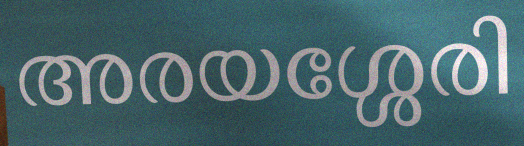
അരയശ്ശേരി